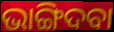
ଭାଙ୍ଗିଦବା